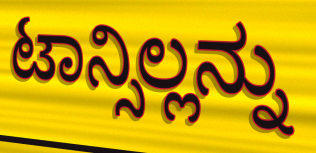
ಟಾನ್ಸಿಲ್ಲನ್ನು